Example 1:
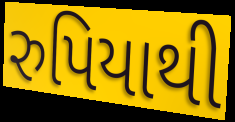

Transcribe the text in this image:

રુપિયાથી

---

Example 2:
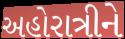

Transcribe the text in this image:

અહોરાત્રીને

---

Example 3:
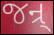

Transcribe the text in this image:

જન્ર્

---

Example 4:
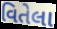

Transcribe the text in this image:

વિતેલા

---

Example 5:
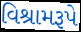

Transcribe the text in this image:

વિશ્રામરૂપે